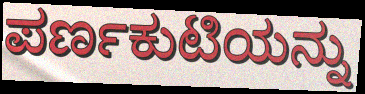
ಪರ್ಣಕುಟಿಯನ್ನು